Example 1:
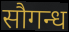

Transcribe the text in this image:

सौगन्ध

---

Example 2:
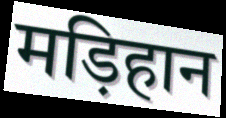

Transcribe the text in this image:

मड़िहान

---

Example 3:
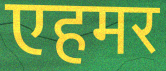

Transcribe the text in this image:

एहमर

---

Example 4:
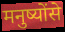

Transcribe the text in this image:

मनुष्योंसे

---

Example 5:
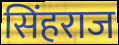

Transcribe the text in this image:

सिंहराज